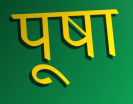
पूषा